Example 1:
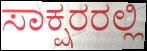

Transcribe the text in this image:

ಸಾಕ್ಷರರಲ್ಲಿ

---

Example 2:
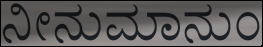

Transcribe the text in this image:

ನೀನುಮಾನುಂ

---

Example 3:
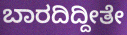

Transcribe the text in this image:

ಬಾರದಿದ್ದೀತೇ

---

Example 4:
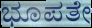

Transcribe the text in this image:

ಭೂಪತೇ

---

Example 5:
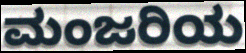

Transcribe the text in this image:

ಮಂಜರಿಯ